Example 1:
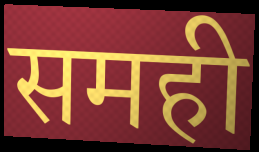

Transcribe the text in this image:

समही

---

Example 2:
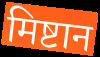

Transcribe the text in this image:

मिष्टान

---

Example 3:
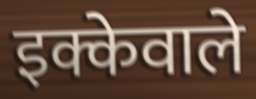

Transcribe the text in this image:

इक्केवाले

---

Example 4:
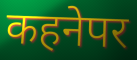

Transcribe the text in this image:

कहनेपर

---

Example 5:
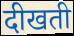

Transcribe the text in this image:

दीखती